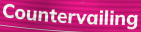
Countervailing